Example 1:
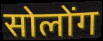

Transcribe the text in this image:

सोलोंग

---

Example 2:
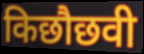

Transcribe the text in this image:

किछौछवी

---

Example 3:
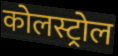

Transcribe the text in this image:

कोलस्ट्रोल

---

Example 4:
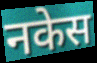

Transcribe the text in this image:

नकेस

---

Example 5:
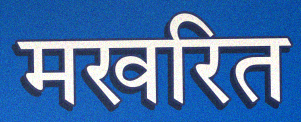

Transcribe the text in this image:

मखरित